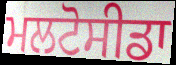
ਮਲਟੋਸੀਡਾ